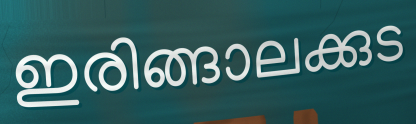
ഇരിങ്ങാലക്കുട